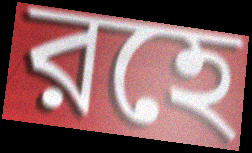
রহে